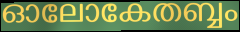
ഓലോകേതബ്ബം